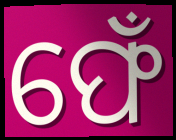
ଫେଁ